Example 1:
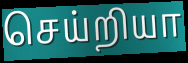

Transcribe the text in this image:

செய்றியா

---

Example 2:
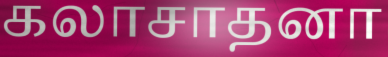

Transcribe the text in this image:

கலாசாதனா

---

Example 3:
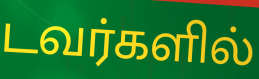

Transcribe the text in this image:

டவர்களில்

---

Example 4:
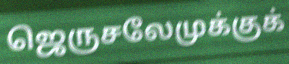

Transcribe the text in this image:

ஜெருசலேமுக்குக்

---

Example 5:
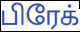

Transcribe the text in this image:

பிரேக்